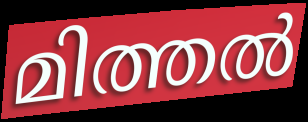
മിത്തൽ